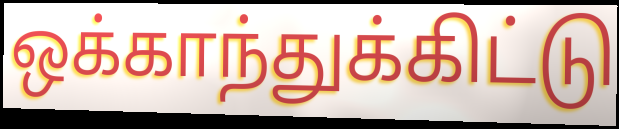
ஒக்காந்துக்கிட்டு